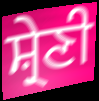
ਸ਼੍ਰੇਣੀ